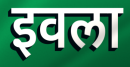
इवला